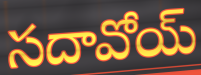
సదావోయ్